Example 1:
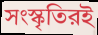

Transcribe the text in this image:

সংস্কৃতিরই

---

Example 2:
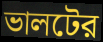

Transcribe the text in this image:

ভালটের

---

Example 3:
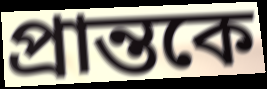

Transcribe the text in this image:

প্রান্তকে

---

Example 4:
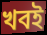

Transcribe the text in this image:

খবই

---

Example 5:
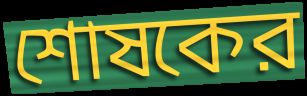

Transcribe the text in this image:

শোষকের